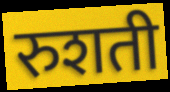
रुशती